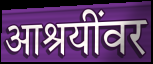
आश्रयींवर